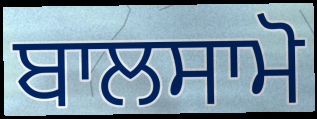
ਬਾਲਸਾਮੋ